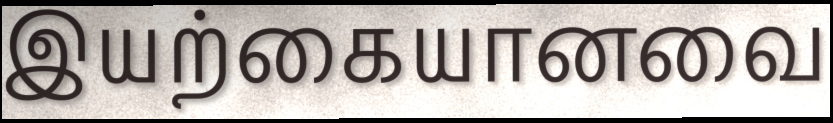
இயற்கையானவை